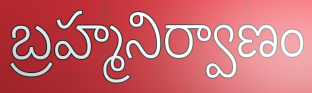
బ్రహ్మనిర్వాణం